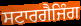
ਸਟਾਰਗੈਜਿੰਗ